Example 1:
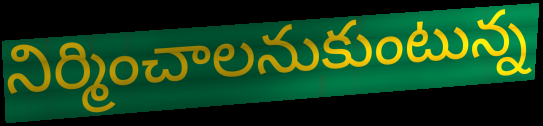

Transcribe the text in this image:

నిర్మించాలనుకుంటున్న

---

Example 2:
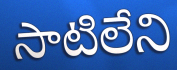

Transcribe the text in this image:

సాటిలేని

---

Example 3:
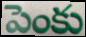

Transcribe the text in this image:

పెంకు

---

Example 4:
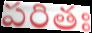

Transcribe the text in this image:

పరితః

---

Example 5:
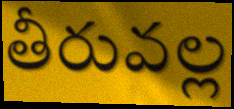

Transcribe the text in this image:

తీరువల్ల